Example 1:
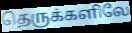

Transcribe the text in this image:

தெருக்களிலே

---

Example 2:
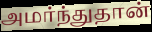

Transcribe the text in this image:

அமர்ந்துதான்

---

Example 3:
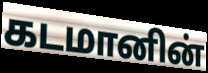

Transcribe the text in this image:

கடமானின்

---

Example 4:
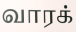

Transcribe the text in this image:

வாரக்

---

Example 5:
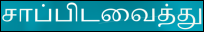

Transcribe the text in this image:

சாப்பிடவைத்து